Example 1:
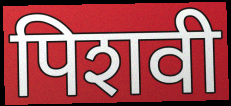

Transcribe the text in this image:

पिशवी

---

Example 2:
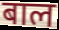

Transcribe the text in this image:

बाल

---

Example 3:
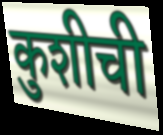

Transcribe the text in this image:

कुशीची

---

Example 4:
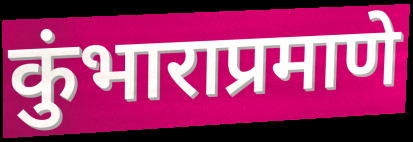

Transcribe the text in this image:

कुंभाराप्रमाणे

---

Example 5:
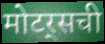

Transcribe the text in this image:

मोटर्सची